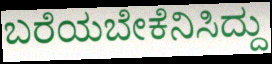
ಬರೆಯಬೇಕೆನಿಸಿದ್ದು